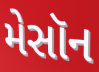
મેસૉન